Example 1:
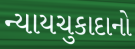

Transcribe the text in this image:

ન્યાયચુકાદાનો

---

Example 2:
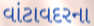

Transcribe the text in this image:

વાંટાવદરના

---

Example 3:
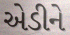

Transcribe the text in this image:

એડીને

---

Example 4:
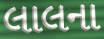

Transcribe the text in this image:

લાલના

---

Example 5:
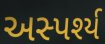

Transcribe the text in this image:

અસ્પર્શ્ય